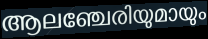
ആലഞ്ചേരിയുമായും